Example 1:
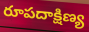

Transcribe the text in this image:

రూపదాక్షిణ్య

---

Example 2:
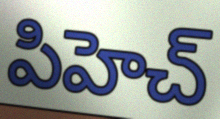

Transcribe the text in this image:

పిహెచ్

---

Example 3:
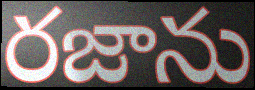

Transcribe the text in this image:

రజాను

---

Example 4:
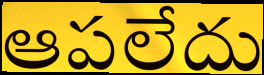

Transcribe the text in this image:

ఆపలేదు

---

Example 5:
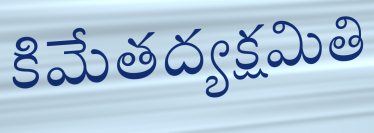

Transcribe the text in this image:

కిమేతద్యక్షమితి